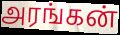
அரங்கன்